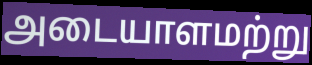
அடையாளமற்று